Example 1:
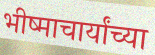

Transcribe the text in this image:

भीष्माचार्यांच्या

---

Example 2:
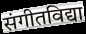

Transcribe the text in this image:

संगीतविद्या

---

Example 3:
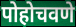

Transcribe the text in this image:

पोहोचवणे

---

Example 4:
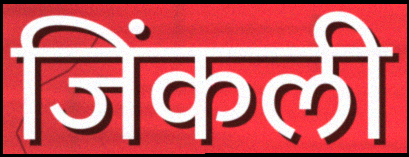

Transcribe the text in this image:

जिंकली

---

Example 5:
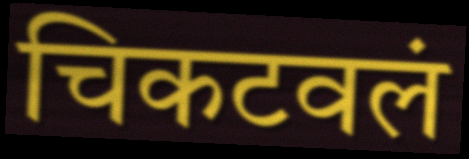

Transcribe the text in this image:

चिकटवलं